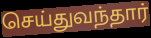
செய்துவந்தார்